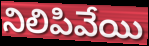
నిలిపివేయి